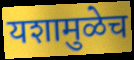
यशामुळेच